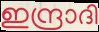
ഇന്ദ്രാദി